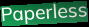
Paperless